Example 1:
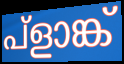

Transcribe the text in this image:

പ്ളാങ്ക്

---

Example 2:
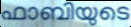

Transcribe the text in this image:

ഫാബിയുടെ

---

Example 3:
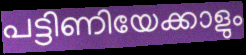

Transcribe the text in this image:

പട്ടിണിയേക്കാളും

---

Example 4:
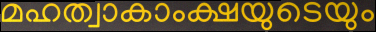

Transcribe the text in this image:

മഹത്വാകാംക്ഷയുടെയും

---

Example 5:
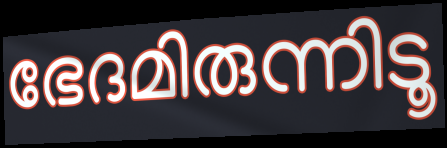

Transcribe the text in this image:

ഭേദമിരുന്നിടൂ